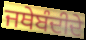
ਜਥੇਬੰਦੀਦੇ